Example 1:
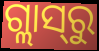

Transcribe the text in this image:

ଗ୍ଲାସ୍‍ରୁ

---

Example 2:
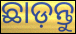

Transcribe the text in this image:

ଛାଡ଼ନ୍ତୁ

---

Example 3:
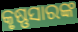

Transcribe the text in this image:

କୃଷ୍ଣସାରଙ୍କ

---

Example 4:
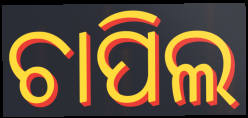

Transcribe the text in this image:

ଚାପିଲ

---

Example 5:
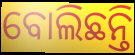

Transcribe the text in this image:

ବୋଲିଛନ୍ତି